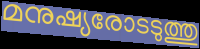
മനുഷ്യരോടടുത്തു